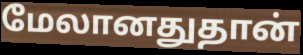
மேலானதுதான்